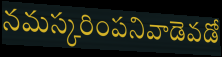
నమస్కరింపనివాడెవడో